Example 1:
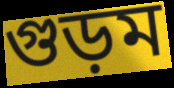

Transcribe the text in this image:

গুড়ম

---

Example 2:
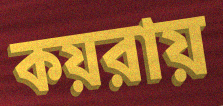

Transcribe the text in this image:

কয়রায়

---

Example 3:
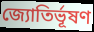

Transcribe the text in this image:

জ্যোতির্ভূষণ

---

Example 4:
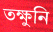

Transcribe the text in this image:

তক্ষুনি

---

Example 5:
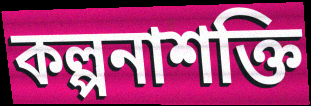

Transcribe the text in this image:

কল্পনাশক্তি